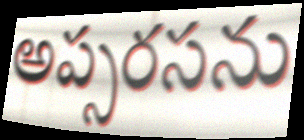
అప్సరసను